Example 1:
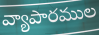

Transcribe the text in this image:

వ్యాపారముల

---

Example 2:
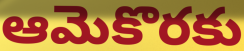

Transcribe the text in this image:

ఆమెకొరకు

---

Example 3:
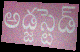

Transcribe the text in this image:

అడ్జస్టెడ్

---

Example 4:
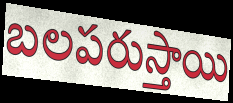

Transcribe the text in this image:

బలపరుస్తాయి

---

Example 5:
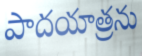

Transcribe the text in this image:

పాదయాత్రను